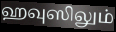
ஹவுஸிலும்